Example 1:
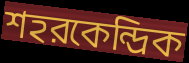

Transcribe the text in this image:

শহরকেন্দ্রিক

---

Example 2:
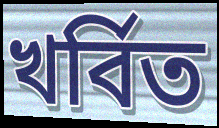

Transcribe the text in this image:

খর্বিত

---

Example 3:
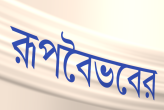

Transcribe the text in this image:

রূপবৈভবের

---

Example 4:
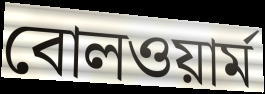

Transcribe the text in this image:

বোলওয়ার্ম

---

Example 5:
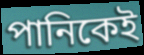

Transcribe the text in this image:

পানিকেই